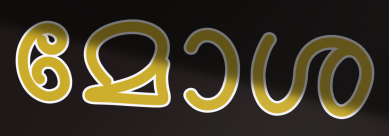
മോശ